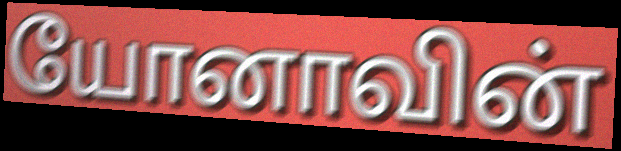
யோனாவின்